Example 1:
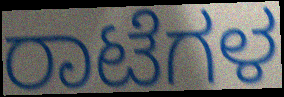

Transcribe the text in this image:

ರಾಟೆಗಳ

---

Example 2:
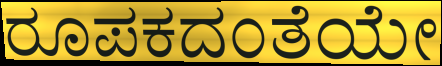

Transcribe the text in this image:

ರೂಪಕದಂತೆಯೇ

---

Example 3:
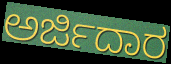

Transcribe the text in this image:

ಅರ್ಜಿದಾರ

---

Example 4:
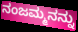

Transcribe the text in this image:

ನಂಜಮ್ಮನನ್ನು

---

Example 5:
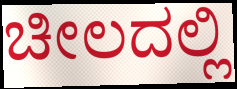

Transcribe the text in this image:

ಚೀಲದಲ್ಲಿ